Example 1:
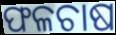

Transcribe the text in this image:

ଫଳଚାଷ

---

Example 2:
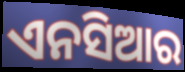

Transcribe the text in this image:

ଏନସିଆର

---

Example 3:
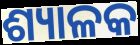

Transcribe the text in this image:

ଶ୍ୟାଳକ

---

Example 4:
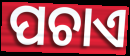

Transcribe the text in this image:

ପଚାଏ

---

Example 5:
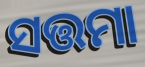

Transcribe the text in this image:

ସତ୍ତମା